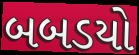
બબડયો